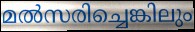
മൽസരിച്ചെങ്കിലും